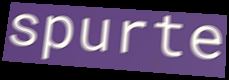
spurte